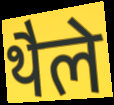
थैले